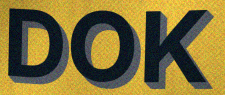
DOK